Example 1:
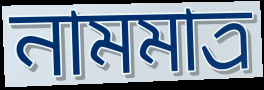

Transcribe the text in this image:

নামমাত্ৰ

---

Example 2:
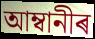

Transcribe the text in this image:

আম্বানীৰ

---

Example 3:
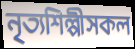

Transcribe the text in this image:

নৃত্যশিল্পীসকল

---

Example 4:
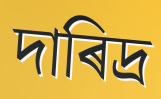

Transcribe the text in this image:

দাৰিদ্ৰ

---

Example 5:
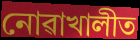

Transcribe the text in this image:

নোৱাখালীত